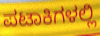
ಪಟಾಕಿಗಳಲ್ಲಿ